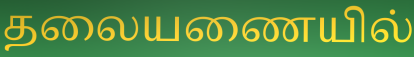
தலையணையில்